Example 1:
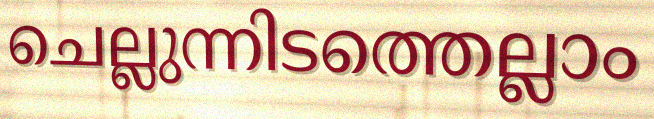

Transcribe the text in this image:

ചെല്ലുന്നിടത്തെല്ലാം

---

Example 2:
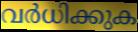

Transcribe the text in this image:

വർധിക്കുക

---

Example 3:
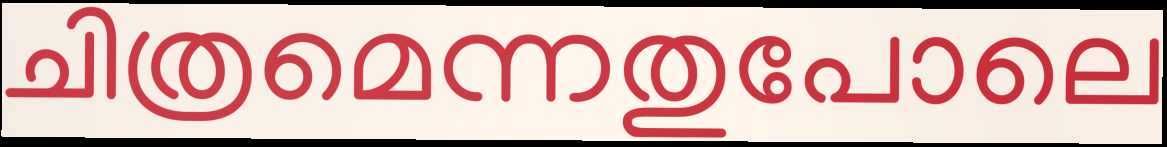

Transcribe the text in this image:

ചിത്രമെന്നതുപോലെ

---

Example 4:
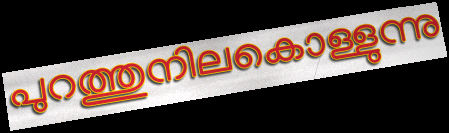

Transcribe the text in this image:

പുറത്തുനിലകൊള്ളുന്നു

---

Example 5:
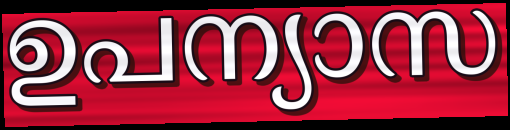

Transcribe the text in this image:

ഉപന്യാസ